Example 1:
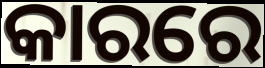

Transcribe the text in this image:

କାରରେ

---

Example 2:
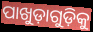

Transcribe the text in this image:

ପାଖୁଡ଼ାଗୁଡ଼ିକୁ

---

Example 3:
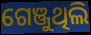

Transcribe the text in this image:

ଗେଞ୍ଜୁଥିଲି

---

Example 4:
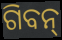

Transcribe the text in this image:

ଗିବନ୍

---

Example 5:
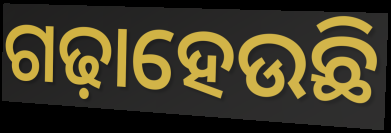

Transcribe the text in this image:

ଗଢ଼ାହେଉଛି